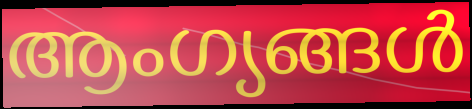
ആംഗ്യങ്ങൾ